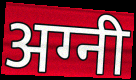
अग्नी